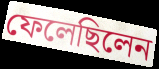
ফেলেছিলেন